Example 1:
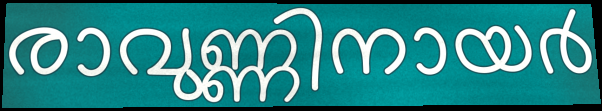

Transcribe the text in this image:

രാവുണ്ണിനായർ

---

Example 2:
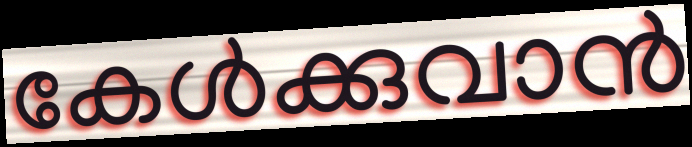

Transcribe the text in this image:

കേൾക്കുവാൻ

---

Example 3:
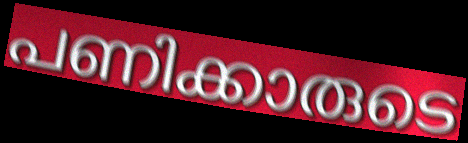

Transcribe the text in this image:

പണിക്കാരുടെ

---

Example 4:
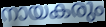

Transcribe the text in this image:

നായകരും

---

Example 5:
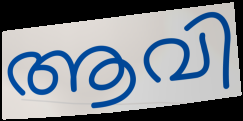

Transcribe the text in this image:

ആവി